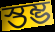
স্তম্ভ